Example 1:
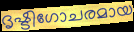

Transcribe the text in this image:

ദൃഷ്ടിഗോചരമായ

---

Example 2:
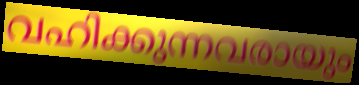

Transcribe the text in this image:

വഹിക്കുന്നവരായും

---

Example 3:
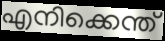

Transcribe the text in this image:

എനിക്കെന്ത്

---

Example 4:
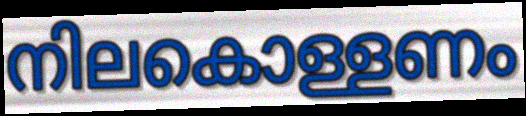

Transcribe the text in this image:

നിലകൊള്ളണം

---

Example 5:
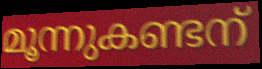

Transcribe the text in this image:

മൂന്നുകണ്ടന്